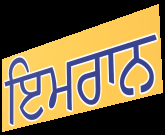
ਇਮਰਾਨ